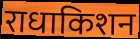
राधाकिशन